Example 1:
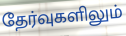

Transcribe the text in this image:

தேர்வுகளிலும்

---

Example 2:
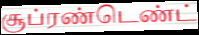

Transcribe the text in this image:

சூப்ரண்டெண்ட்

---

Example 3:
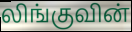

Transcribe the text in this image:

லிங்குவின்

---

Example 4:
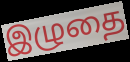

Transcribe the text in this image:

இழுதை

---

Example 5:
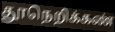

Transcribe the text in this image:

தூநெறிக்கண்